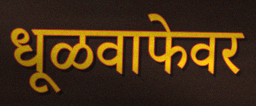
धूळवाफेवर